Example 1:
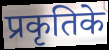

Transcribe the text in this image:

प्रकृतिके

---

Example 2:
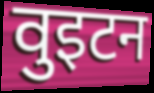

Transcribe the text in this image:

वुइटन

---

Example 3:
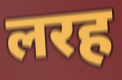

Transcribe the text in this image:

लरह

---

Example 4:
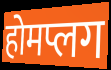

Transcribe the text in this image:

होमप्लग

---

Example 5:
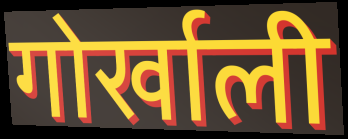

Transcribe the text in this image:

गोर्खाली